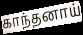
காந்தனாய்